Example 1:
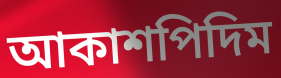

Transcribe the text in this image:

আকাশপিদিম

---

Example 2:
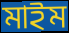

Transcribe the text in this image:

মাইম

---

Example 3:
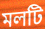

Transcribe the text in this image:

মলটি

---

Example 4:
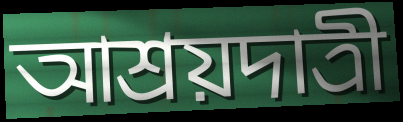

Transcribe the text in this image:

আশ্রয়দাত্রী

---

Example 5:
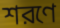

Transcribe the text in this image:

শরণে